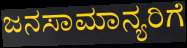
ಜನಸಾಮಾನ್ಯರಿಗೆ